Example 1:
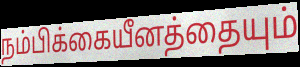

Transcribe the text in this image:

நம்பிக்கையீனத்தையும்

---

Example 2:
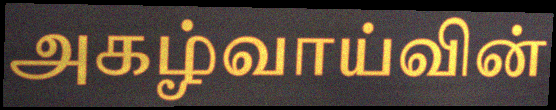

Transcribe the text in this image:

அகழ்வாய்வின்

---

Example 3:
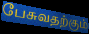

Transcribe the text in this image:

பேசுவதற்கும்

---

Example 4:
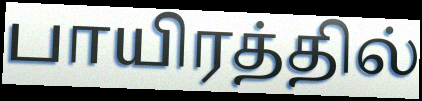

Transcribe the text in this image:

பாயிரத்தில்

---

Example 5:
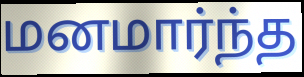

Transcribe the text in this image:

மனமார்ந்த